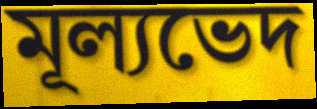
মূল্যভেদ